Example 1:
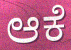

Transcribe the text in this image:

ಆಕೆ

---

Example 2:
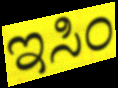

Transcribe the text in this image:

ಇಸಿಂ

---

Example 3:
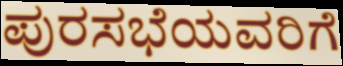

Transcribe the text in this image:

ಪುರಸಭೆಯವರಿಗೆ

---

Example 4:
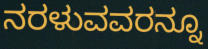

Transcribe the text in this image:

ನರಳುವವರನ್ನೂ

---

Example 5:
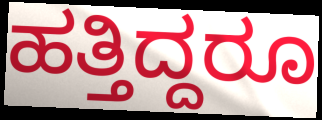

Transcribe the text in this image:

ಹತ್ತಿದ್ದರೂ